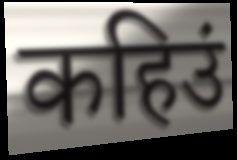
कहिउं